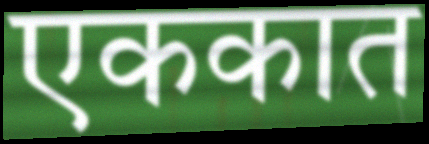
एककात